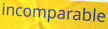
incomparable